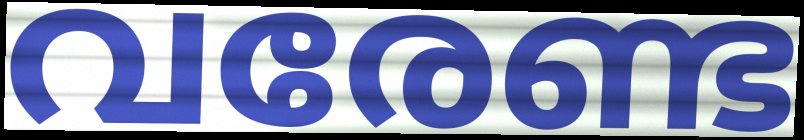
വരേണ്ട